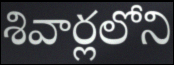
శివార్లలోని